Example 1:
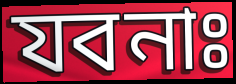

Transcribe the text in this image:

যবনাঃ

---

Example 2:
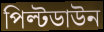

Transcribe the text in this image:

পিল্টডাউন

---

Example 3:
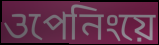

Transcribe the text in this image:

ওপেনিংয়ে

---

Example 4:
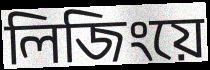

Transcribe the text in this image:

লিজিংয়ে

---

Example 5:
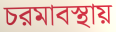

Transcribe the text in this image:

চরমাবস্থায়